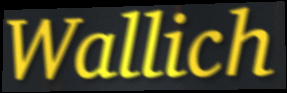
Wallich